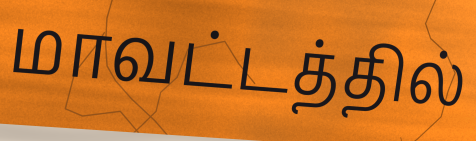
மாவட்டத்தில்